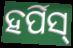
ହର୍ପିସ୍